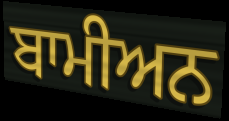
ਬਾਮੀਅਨ